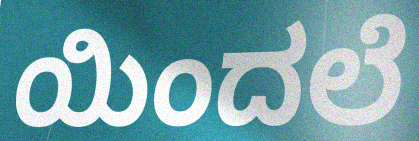
ಯಿಂದಲೆ